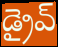
డ్రైవ్